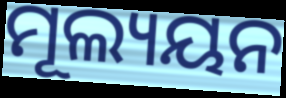
ମୂଲ୍ୟୟନ